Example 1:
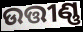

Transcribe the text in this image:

ଉତ୍ତୀଣ୍ଣ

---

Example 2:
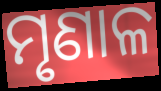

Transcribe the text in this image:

ମୃଣାଳ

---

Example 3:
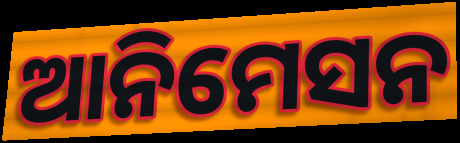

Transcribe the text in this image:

ଆନିମେସନ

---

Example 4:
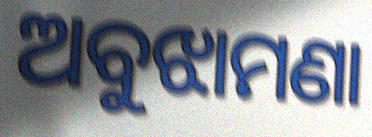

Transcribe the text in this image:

ଅବୁଝାମଣା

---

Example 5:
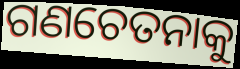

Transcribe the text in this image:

ଗଣଚେତନାକୁ